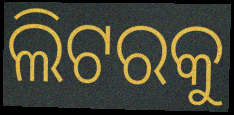
ଲିଟରକୁ